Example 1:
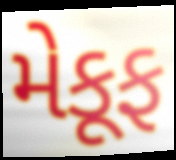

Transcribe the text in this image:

મેકૂફ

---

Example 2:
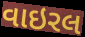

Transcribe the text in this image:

વાઇરલ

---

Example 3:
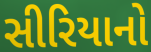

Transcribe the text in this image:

સીરિયાનો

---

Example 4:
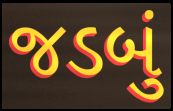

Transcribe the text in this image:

જડબું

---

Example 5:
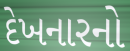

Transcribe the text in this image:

દેખનારનો